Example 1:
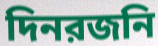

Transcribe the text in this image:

দিনরজনি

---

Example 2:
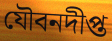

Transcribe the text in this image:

যৌবনদীপ্ত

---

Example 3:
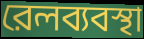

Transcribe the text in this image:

রেলব্যবস্থা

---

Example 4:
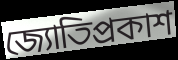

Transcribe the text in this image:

জ্যোতিপ্রকাশ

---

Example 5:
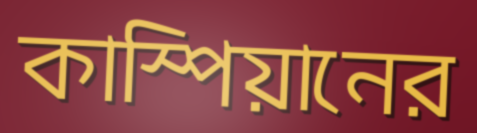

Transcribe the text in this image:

কাস্পিয়ানের